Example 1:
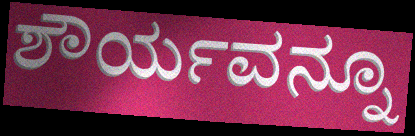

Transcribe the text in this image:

ಶೌರ್ಯವನ್ನೂ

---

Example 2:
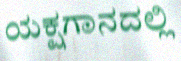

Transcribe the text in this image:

ಯಕ್ಷಗಾನದಲ್ಲಿ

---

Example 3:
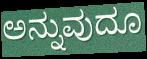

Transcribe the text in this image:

ಅನ್ನುವುದೂ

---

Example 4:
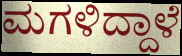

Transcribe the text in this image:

ಮಗಳಿದ್ದಾಳೆ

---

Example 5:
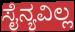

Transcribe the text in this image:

ಸೈನ್ಯವಿಲ್ಲ